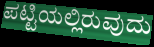
ಪಟ್ಟಿಯಲ್ಲಿರುವುದು